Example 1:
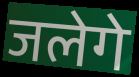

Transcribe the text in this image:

जलेगे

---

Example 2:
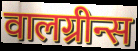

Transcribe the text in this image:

वालग्रीन्स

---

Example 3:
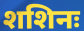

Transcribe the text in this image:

शशिनः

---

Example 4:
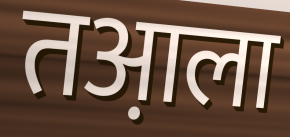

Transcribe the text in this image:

तआ़ला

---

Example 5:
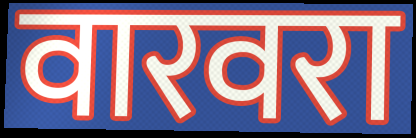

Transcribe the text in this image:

वारवरा